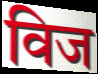
विज